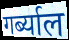
गर्ब्याल